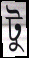
টু